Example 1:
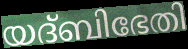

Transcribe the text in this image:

യദ്ബിഭേതി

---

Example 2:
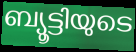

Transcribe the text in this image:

ബ്യൂട്ടിയുടെ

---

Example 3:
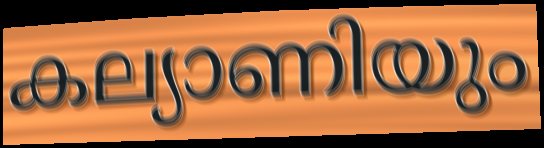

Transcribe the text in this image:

കല്യാണിയും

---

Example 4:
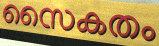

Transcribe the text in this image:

സൈകതം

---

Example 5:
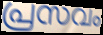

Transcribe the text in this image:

പ്രസവം